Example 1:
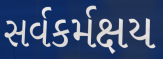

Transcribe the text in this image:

સર્વકર્મક્ષય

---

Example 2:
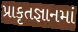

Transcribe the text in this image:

પ્રાકૃતજ્ઞાનમાં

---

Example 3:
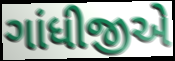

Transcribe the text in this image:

ગાંધીજીએ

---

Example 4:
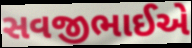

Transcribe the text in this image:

સવજીભાઈએ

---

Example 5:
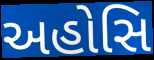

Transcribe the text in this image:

અહોસિ